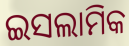
ଇସଲାମିକ